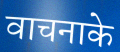
वाचनाके